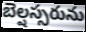
బెల్షస్సరును